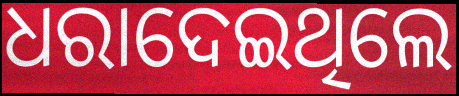
ଧରାଦେଇଥିଲେ